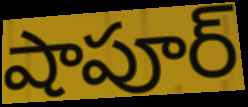
షాపూర్